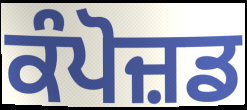
ਕੰਪੋਜ਼ਡ